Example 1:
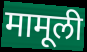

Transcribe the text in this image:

मामूली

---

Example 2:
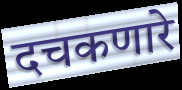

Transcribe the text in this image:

दचकणारे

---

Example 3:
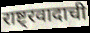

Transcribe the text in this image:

राष्ट्रवादाची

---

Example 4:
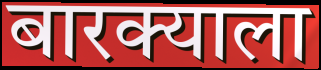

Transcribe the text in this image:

बारक्याला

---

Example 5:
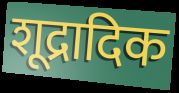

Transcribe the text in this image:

शूद्रादिक